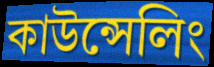
কাউন্সেলিং